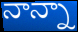
నాన్నా